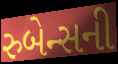
રુબેન્સની